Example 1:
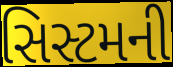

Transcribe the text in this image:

સિસ્ટમની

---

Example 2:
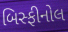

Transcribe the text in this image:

બિસ્ફીનોલ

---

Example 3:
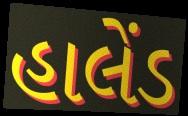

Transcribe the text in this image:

હાલેંડ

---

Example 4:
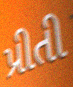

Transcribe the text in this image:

પ્રીતી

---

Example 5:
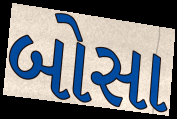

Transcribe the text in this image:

બોસા